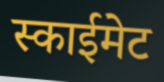
स्काईमेट